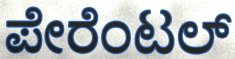
ಪೇರೆಂಟಲ್